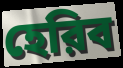
হেরিব